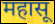
महासू